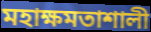
মহাক্ষমতাশালী